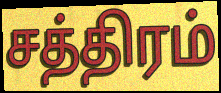
சத்திரம்